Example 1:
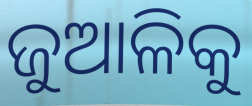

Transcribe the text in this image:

ଜୁଆଳିକୁ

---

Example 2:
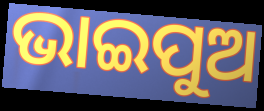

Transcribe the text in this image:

ଭାଇପୁଅ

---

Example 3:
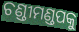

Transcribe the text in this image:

ଚଣ୍ଡୀମଣ୍ଡପକୁ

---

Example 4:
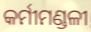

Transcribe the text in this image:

କର୍ମୀମଣ୍ଡଳୀ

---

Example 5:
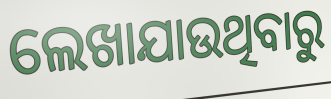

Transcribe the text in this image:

ଲେଖାଯାଉଥିବାରୁ